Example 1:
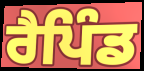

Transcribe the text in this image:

ਰੈਪਿੰਡ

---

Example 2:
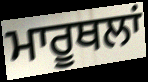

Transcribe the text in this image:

ਮਾਰੂਥਲਾਂ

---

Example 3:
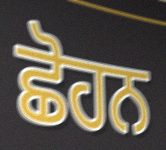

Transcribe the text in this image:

ਛੋਹਨ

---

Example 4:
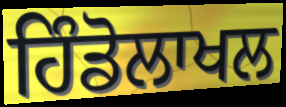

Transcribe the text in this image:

ਹਿੰਡੋਲਾਖਲ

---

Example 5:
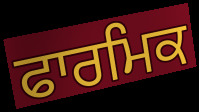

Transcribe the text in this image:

ਫਾਰਮਿਕ